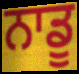
ਨਾਡੂ